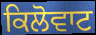
ਕਿਲੋਵਾਟ